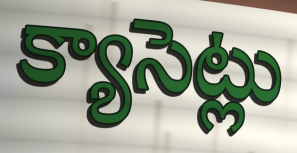
క్యాసెట్లు